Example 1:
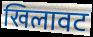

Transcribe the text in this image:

खिलावट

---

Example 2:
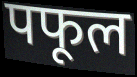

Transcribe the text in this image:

पफूल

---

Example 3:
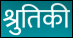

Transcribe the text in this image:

श्रुतिकी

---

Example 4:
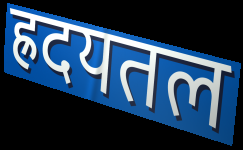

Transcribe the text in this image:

ह्रदयतल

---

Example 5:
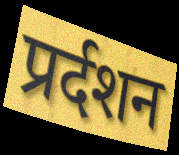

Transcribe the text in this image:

प्रर्दशन